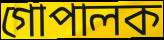
গোপালক